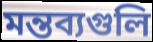
মন্তব্যগুলি